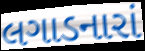
લગાડનારાં